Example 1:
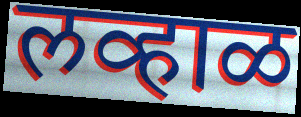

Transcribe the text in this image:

लव्हाळ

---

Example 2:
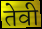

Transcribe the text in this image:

तेवी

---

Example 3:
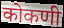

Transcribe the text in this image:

कोकणी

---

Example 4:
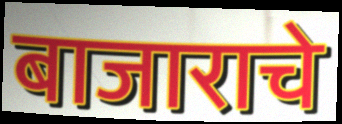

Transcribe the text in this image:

बाजाराचे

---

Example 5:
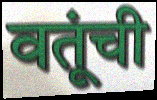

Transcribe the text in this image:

वतूंची